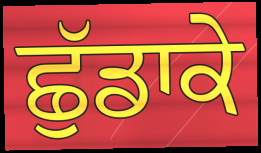
ਛੁੱਡਾਕੇ